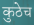
कुठेच